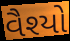
વૈશ્યો